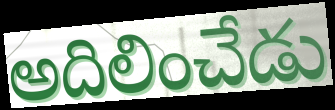
అదిలించేడు